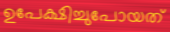
ഉപേക്ഷിച്ചുപോയത്